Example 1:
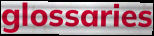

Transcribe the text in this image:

glossaries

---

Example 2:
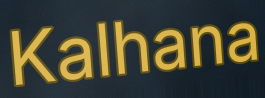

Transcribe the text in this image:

Kalhana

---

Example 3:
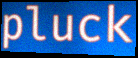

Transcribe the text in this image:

pluck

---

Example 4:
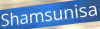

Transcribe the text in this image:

Shamsunisa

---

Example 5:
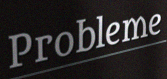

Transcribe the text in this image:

Probleme